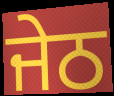
ਜੇਠ